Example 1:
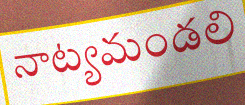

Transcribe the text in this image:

నాట్యమండలి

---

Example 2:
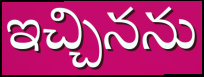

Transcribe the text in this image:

ఇచ్చినను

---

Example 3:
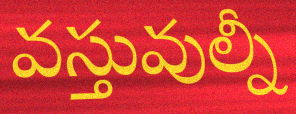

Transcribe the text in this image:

వస్తువుల్నీ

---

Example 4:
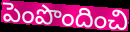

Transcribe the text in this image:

పెంపొందించి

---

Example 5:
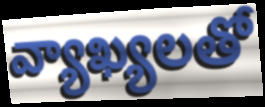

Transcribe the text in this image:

వ్యాఖ్యలతో